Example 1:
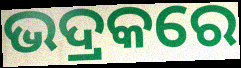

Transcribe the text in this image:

ଭଦ୍ରକରେ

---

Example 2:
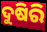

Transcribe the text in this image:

ଦୁଷିରି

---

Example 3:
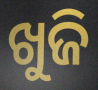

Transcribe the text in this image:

ଖୁଜି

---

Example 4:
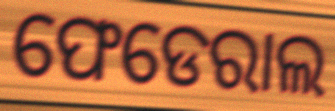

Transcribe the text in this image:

ଫେଡେରାଲ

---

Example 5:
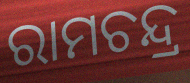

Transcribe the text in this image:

ରାମଚନ୍ଦ୍ର